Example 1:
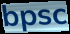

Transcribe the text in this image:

bpsc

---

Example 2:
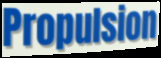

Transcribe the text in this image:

Propulsion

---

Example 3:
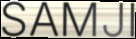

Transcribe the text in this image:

SAMJI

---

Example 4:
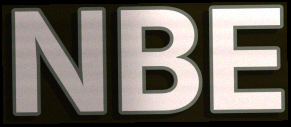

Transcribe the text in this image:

NBE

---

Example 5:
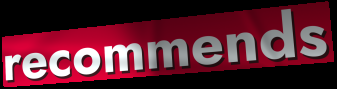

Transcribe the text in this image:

recommends